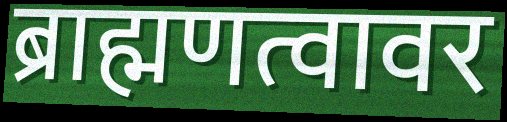
ब्राह्मणत्वावर